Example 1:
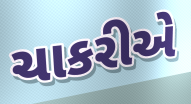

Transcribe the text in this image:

ચાકરીએ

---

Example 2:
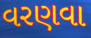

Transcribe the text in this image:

વરણવા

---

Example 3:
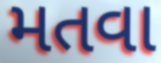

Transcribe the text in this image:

મતવા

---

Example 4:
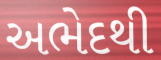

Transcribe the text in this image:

અભેદથી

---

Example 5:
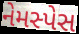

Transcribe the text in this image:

નેમસ્પેસ